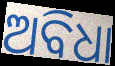
ଅବିଧା